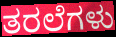
ತರಲೆಗಳು